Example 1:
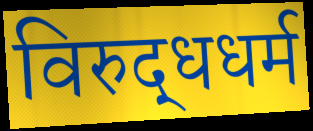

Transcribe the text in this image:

विरुद्धधर्म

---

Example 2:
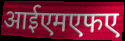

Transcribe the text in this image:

आईएमएफए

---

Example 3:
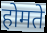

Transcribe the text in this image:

होमते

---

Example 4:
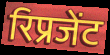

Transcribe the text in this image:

रिप्रजेंट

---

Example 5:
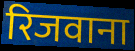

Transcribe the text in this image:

रिजवाना